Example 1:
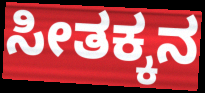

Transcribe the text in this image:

ಸೀತಕ್ಕನ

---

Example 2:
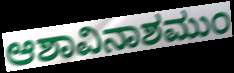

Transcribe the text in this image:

ಆಶಾವಿನಾಶಮುಂ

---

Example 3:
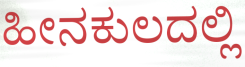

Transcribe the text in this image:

ಹೀನಕುಲದಲ್ಲಿ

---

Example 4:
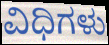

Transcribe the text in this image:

ವಿಧಿಗಳು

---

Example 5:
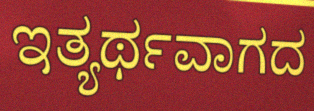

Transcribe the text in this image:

ಇತ್ಯರ್ಥವಾಗದ